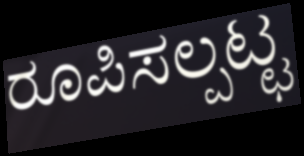
ರೂಪಿಸಲ್ಪಟ್ಟ